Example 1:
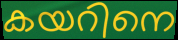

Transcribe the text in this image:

കയറിനെ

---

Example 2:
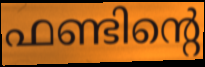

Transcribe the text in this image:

ഫണ്ടിന്റെ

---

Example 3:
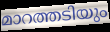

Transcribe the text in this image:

മാറത്തടിയും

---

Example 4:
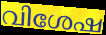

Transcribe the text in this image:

വിശേഷ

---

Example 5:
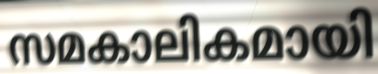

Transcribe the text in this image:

സമകാലികമായി